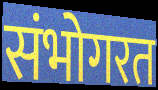
संभोगरत